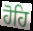
ਹੋਹਿ